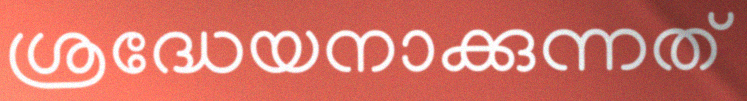
ശ്രദ്ധേയനാക്കുന്നത്